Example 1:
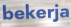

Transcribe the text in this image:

bekerja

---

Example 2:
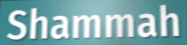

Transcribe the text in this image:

Shammah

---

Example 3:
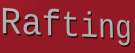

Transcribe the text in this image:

Rafting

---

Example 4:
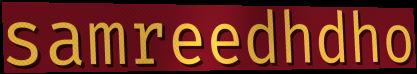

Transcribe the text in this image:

samreedhdho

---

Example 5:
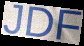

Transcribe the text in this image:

JDF